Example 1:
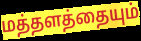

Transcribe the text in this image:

மத்தளத்தையும்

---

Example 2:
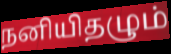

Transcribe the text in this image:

நனியிதழும்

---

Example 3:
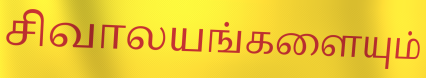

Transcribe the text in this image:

சிவாலயங்களையும்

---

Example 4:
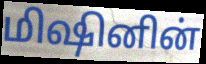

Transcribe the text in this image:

மிஷினின்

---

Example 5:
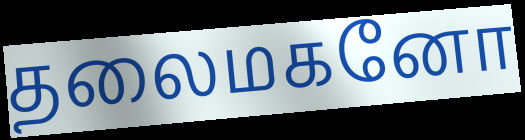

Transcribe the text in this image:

தலைமகனோ